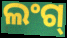
ଲଂଗ୍